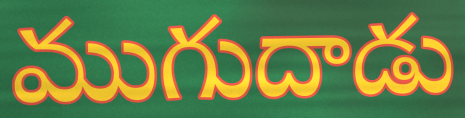
ముగుదాడు